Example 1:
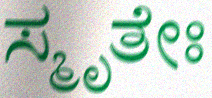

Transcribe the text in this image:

ಸ್ಮೃತೇಃ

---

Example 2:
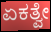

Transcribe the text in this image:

ಏಕತ್ವೇ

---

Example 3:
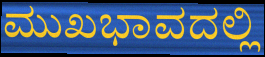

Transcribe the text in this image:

ಮುಖಭಾವದಲ್ಲಿ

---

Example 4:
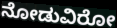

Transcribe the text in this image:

ನೋಡುವಿರೋ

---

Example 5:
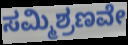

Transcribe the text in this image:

ಸಮ್ಮಿಶ್ರಣವೇ